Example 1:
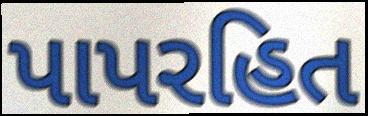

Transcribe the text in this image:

પાપરહિત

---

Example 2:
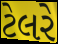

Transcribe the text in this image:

ટેલરે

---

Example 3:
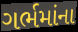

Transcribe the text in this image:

ગર્ભમાંના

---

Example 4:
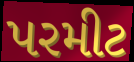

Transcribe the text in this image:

પરમીટ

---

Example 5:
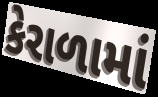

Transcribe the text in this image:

કેરાળામાં